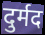
दुर्मद